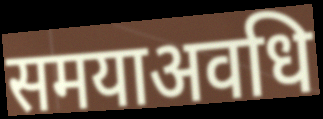
समयाअवधि